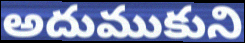
అదుముకుని